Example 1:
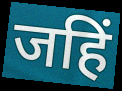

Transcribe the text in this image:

जहिं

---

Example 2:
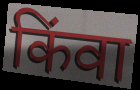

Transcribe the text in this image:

किंवा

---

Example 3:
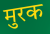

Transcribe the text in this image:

मुरक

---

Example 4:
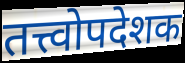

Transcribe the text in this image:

तत्त्वोपदेशक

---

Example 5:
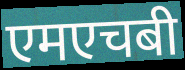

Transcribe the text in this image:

एमएचबी